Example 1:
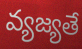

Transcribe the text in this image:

వ్యజ్యతే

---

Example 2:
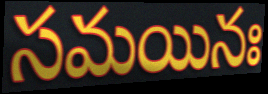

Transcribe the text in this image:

సమయినః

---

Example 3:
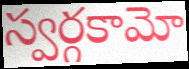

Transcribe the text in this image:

స్వర్గకామో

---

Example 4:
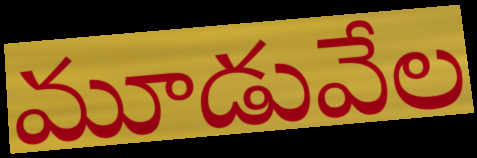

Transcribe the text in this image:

మూడువేల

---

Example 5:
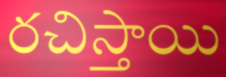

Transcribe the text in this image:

రచిస్తాయి